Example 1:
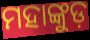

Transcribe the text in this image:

ମହାଙ୍କୁଡ଼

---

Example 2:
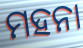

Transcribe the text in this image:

ମହନା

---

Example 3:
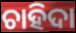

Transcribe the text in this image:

ଚାହିଦା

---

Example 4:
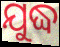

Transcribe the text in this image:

ଯୁଦ୍ଧ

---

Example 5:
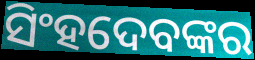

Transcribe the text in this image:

ସିଂହଦେବଙ୍କର